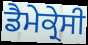
ਡੈਮੇਕ੍ਰੇਸੀ